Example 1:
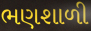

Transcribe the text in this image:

ભણશાળી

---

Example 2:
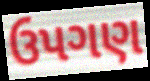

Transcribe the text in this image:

ઉપગણ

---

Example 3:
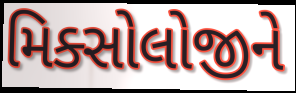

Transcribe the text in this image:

મિક્સોલોજીને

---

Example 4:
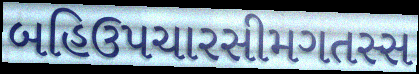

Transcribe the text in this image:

બહિઉપચારસીમગતસ્સ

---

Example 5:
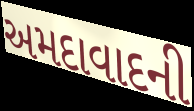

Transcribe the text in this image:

અમદાવાદની